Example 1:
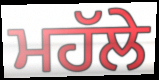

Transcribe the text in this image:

ਮਹੱਲੇ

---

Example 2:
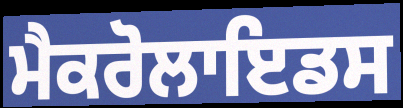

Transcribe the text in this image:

ਮੈਕਰੋਲਾਇਡਸ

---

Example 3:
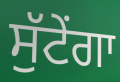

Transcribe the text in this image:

ਸੁੱਟੇਂਗਾ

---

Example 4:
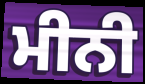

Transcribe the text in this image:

ਮੀਨੀ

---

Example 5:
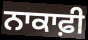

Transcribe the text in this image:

ਨਾਕਾਫ਼ੀ